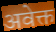
अवेक्त